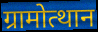
ग्रामोत्थान